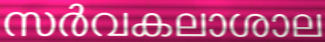
സർവകലാശാല